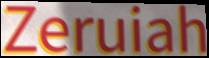
Zeruiah